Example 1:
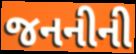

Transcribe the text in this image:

જનનીની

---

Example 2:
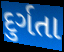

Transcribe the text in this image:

દુર્ગતા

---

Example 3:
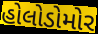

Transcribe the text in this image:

હોલોડોમોર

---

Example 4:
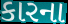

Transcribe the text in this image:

કારના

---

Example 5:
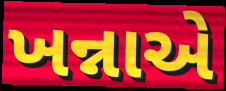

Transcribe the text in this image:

ખન્નાએ